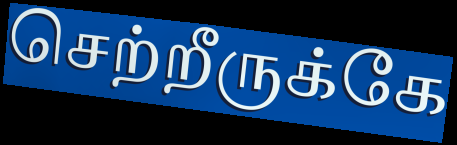
செற்றீருக்கே